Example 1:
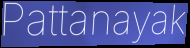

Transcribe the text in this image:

Pattanayak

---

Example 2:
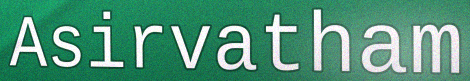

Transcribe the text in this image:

Asirvatham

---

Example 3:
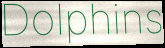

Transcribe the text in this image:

Dolphins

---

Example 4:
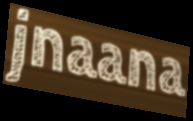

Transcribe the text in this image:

jnaana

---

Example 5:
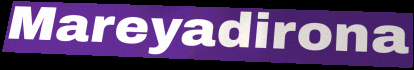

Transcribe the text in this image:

Mareyadirona